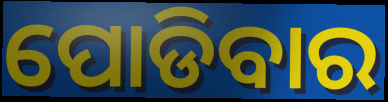
ପୋଡିବାର